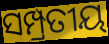
ସମ୍ପ୍ରତୀୟ